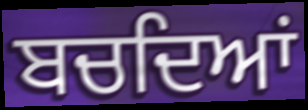
ਬਚਦਿਆਂ